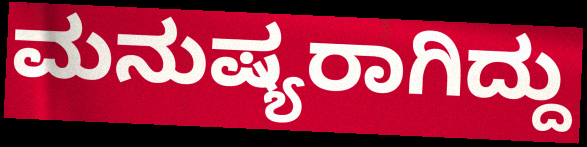
ಮನುಷ್ಯರಾಗಿದ್ದು